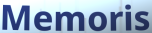
Memoris